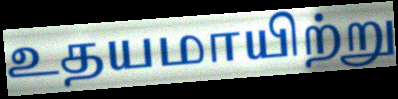
உதயமாயிற்று